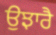
ਉਝਾਰੈ